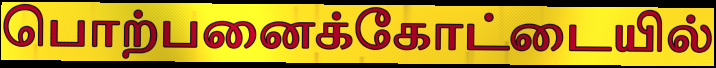
பொற்பனைக்கோட்டையில்